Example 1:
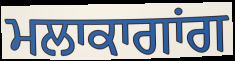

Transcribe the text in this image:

ਮਲਾਕਾਗਾਂਗ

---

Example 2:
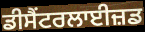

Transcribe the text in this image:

ਡੀਸੈਂਟਰਲਾਈਜ਼ਡ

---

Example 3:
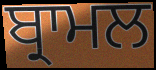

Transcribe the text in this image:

ਬ੍ਰਾਮਲ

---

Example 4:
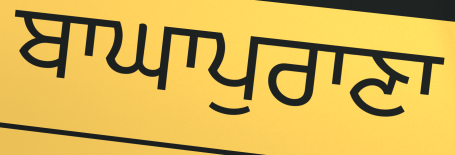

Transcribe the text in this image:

ਬਾਘਾਪੁਰਾਣਾ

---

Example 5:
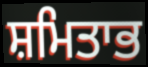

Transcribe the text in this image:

ਸ਼ਮਿਤਾਭ